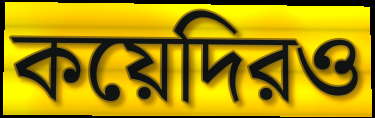
কয়েদিরও